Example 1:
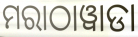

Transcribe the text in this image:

ମରାଠାୱାଡା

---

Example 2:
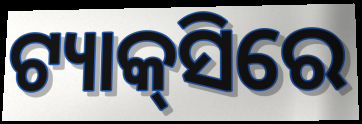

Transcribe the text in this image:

ଟ୍ୟାକ୍‍ସିରେ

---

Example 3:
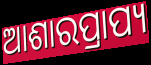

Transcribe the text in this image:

ଆଶାରପ୍ରାପ୍ୟ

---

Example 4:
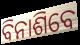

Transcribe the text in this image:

ବିନାଶିବେ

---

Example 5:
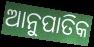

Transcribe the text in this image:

ଆନୁପାତିକ